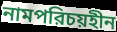
নামপরিচয়হীন